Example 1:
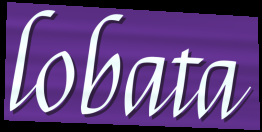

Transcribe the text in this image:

lobata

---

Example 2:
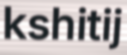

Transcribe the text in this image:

kshitij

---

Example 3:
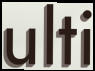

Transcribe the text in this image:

ulti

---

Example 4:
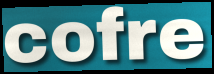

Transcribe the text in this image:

cofre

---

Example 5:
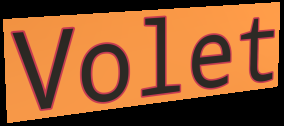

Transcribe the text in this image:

Volet